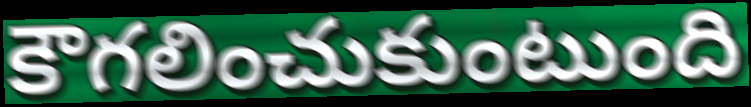
కౌగలించుకుంటుంది